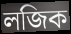
লজিক